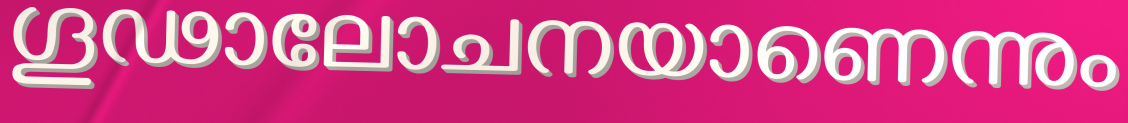
ഗൂഢാലോചനയാണെന്നും